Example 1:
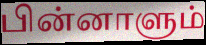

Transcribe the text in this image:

பின்னாளும்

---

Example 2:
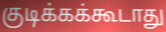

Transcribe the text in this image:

குடிக்கக்கூடாது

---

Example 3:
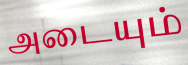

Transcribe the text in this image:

அடையும்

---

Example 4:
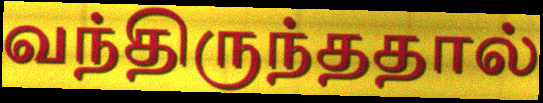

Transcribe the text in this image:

வந்திருந்ததால்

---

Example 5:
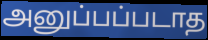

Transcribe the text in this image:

அனுப்பப்படாத